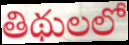
తిథులలో